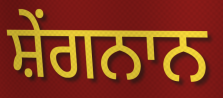
ਸ਼ੇਂਗਨਾਨ